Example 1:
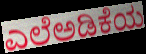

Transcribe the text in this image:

ಎಲೆಅಡಿಕೆಯ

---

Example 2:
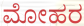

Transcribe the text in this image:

ಮೋಹರ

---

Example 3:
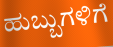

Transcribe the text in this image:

ಹುಬ್ಬುಗಳಿಗೆ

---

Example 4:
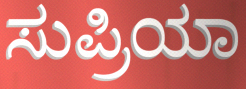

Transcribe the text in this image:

ಸುಪ್ರಿಯಾ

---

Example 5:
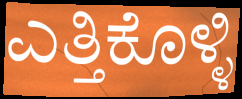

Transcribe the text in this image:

ಎತ್ತಿಕೊಳ್ಳಿ